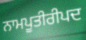
ਨਾਮਪੂਤੀਰੀਪਦ